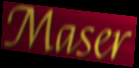
Maser